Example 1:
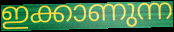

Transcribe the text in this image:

ഇക്കാണുന്ന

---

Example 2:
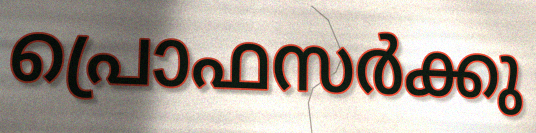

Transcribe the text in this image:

പ്രൊഫസർക്കു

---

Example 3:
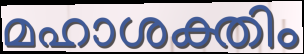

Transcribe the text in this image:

മഹാശക്തിം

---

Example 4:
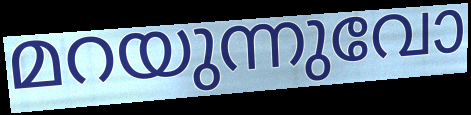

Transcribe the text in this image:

മറയുന്നുവോ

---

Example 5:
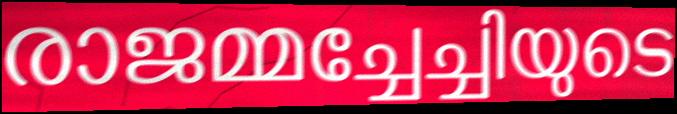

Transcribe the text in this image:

രാജമ്മച്ചേച്ചിയുടെ